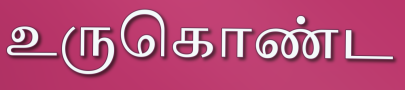
உருகொண்ட